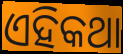
ଏହିକଥା